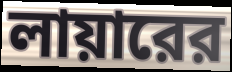
লায়ারের